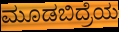
ಮೂಡಬಿದ್ರೆಯ